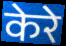
केरे